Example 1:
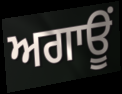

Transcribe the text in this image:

ਅਗਾਊਂ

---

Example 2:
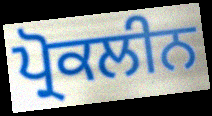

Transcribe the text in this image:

ਪ੍ਰੋਕਲੀਨ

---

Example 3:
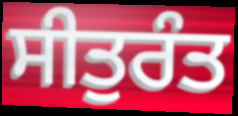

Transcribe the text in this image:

ਸੀਤੁਰੰਤ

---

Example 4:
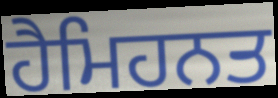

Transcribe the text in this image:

ਹੈਮਿਹਨਤ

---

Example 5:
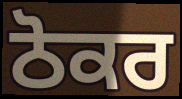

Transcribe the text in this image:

ਠੋਕਰ